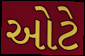
ઓટે